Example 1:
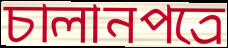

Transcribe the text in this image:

চালানপত্রে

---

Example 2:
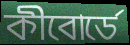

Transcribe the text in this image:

কীবোর্ডে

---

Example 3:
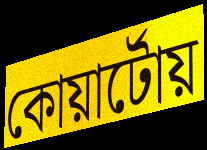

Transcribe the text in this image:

কোয়ার্টোয়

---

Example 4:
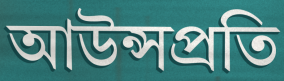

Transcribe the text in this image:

আউন্সপ্রতি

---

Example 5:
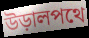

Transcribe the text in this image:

উড়ালপথে